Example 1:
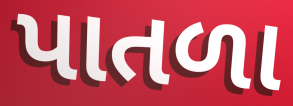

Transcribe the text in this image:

પાતળા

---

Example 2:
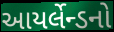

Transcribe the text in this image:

આયર્લેન્ડનો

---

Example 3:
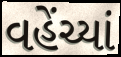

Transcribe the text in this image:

વહેંચ્યાં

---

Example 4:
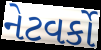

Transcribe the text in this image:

નેટવર્કો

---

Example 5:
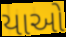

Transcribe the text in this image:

યાઓ